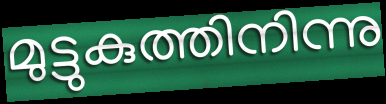
മുട്ടുകുത്തിനിന്നു